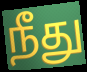
நீது